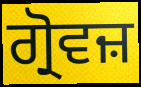
ਗ੍ਰੋਵਜ਼